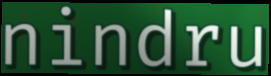
nindru